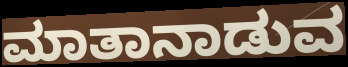
ಮಾತಾನಾಡುವ